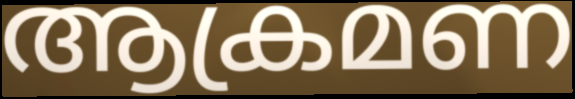
ആക്രമണ